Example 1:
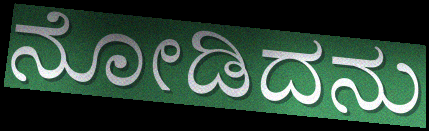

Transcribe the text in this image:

ನೋಡಿದನು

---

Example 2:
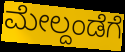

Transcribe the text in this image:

ಮೇಲ್ದಂಡೆಗೆ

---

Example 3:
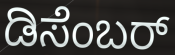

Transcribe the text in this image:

ಡಿಸೆಂಬರ್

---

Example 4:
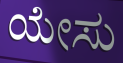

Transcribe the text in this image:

ಯೇಸು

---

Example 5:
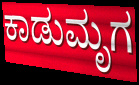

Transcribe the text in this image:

ಕಾಡುಮೃಗ